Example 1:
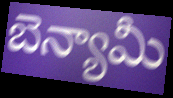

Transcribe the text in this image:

బెన్యామీ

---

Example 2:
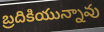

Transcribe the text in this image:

బ్రదికియున్నావు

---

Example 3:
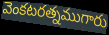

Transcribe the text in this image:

వెంకటరత్నముగారు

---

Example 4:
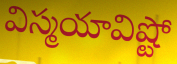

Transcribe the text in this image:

విస్మయావిష్టో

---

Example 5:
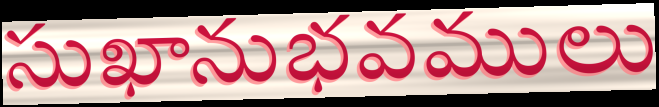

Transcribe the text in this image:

సుఖానుభవములు